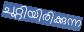
ചുറ്റിയിരിക്കുന്ന